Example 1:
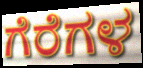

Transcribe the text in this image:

ಗೆರೆಗಳ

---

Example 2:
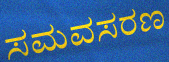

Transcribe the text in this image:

ಸಮವಸರಣ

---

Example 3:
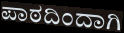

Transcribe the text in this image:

ಪಾಠದಿಂದಾಗಿ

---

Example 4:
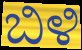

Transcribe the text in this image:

ಬಿಳಿ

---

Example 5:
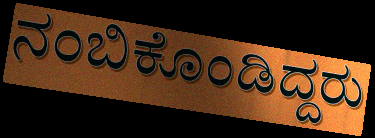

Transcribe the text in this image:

ನಂಬಿಕೊಂಡಿದ್ದರು